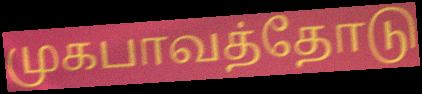
முகபாவத்தோடு